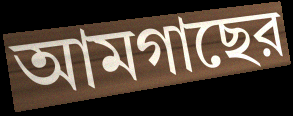
আমগাছের